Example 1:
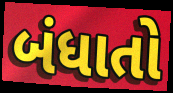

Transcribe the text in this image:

બંધાતો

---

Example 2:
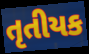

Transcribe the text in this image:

તૃતીયક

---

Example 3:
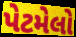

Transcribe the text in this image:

પેટમેલો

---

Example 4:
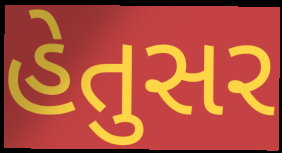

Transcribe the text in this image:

હેતુસર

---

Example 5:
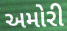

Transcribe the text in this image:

અમોરી